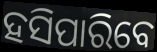
ହସିପାରିବେ